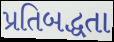
પ્રતિબદ્ધતા